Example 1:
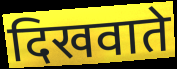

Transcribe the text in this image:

दिखवाते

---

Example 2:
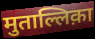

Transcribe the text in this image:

मुताल्लिक़ा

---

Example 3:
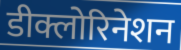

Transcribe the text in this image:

डीक्लोरिनेशन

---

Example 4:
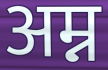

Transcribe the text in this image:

अम्न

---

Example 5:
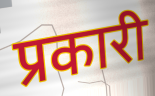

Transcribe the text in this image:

प्रकारी